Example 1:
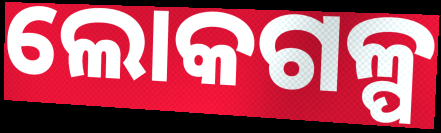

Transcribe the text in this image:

ଲୋକଗଳ୍ପ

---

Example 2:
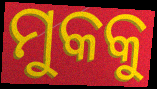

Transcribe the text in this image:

ମୁକକୁ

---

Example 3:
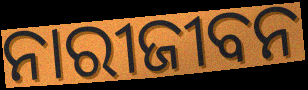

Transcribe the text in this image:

ନାରୀଜୀବନ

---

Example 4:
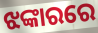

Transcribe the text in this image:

ଝଙ୍କାରରେ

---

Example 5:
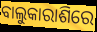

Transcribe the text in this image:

ବାଲୁକାରାଶିରେ